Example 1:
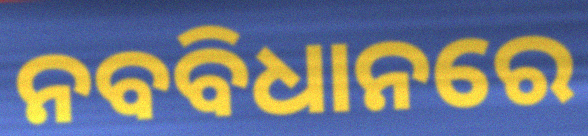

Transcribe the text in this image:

ନବବିଧାନରେ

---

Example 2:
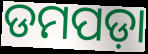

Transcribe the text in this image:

ଡମପଡ଼ା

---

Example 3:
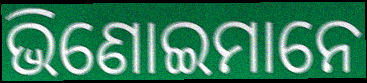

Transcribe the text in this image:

ଭିଣୋଇମାନେ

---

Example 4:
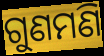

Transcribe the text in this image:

ଗୁଣମଣି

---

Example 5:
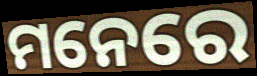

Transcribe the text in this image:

ମନେରେ